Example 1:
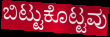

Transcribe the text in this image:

ಬಿಟ್ಟುಕೊಟ್ಟವು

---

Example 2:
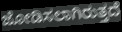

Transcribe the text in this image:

ಜೋಡಿಸಲಾಗಿರುತ್ತದೆ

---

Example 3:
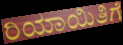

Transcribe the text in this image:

ರಿಯಾಯಿತಿಗೆ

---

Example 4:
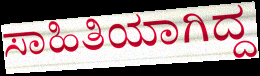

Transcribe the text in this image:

ಸಾಹಿತಿಯಾಗಿದ್ದ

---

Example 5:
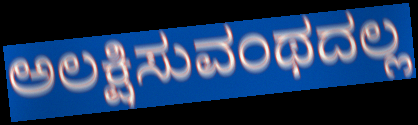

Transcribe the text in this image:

ಅಲಕ್ಷಿಸುವಂಥದಲ್ಲ